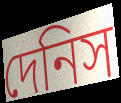
দেনিস